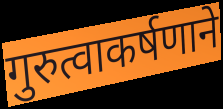
गुरुत्वाकर्षणाने